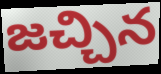
జచ్చిన